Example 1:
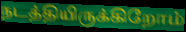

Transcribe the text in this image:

நடத்தியிருக்கிறோம்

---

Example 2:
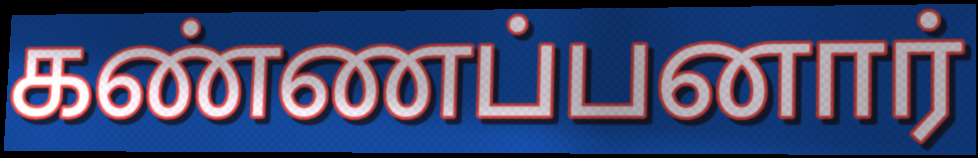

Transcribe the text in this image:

கண்ணப்பனார்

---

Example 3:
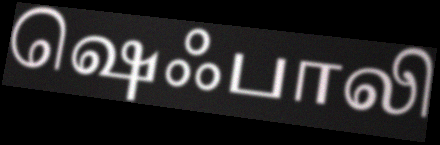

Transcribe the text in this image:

ஷெஃபாலி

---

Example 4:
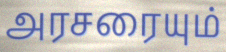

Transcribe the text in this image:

அரசரையும்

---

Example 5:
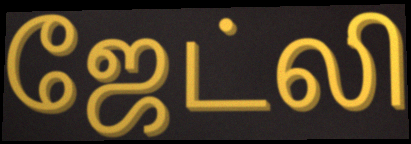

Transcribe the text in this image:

ஜேட்லி